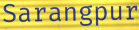
Sarangpur